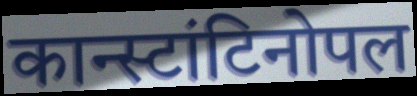
कान्स्टांटिनोपल